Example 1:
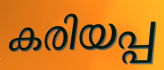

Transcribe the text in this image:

കരിയപ്പ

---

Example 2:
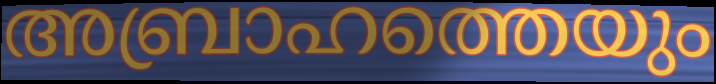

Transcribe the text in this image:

അബ്രാഹത്തെയും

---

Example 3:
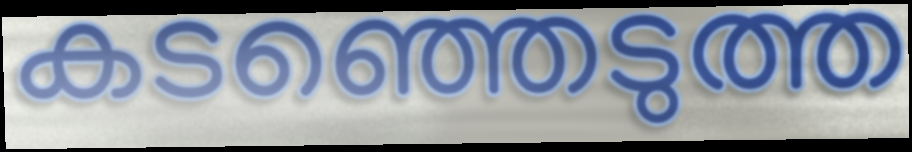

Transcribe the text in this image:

കടഞ്ഞെടുത്ത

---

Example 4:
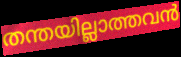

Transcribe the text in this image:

തന്തയില്ലാത്തവൻ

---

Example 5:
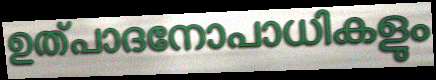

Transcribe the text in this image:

ഉത്പാദനോപാധികളും